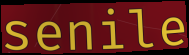
senile